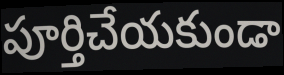
పూర్తిచేయకుండా